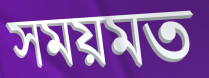
সময়মত